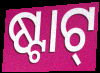
ଷ୍ଟାଟ୍